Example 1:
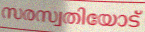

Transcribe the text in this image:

സരസ്വതിയോട്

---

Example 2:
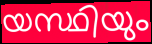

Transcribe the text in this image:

യസ്ഥിയും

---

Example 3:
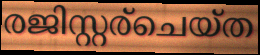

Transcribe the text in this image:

രജിസ്റ്റര്ചെയ്ത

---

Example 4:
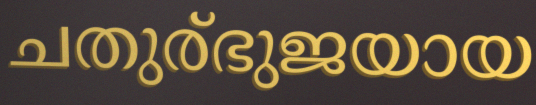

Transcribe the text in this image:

ചതുര്ഭുജയായ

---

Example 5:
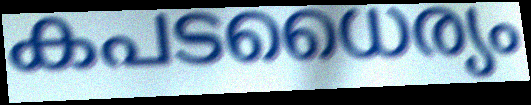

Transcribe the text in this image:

കപടധൈര്യം